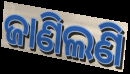
ଜାଣିଲଣି